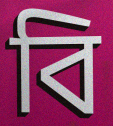
বি